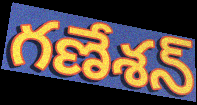
గణేశన్